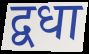
द्वधा